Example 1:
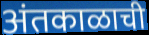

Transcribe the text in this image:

अंतकाळाची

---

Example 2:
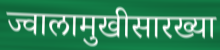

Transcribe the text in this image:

ज्वालामुखीसारख्या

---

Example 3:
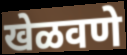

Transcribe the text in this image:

खेळवणे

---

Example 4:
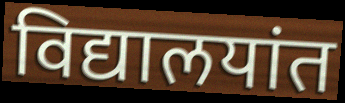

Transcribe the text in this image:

विद्यालयांत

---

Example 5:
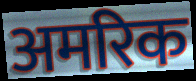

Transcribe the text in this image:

अमरिक